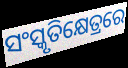
ସଂସ୍କୃତିକ୍ଷେତ୍ରରେ